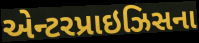
એન્ટરપ્રાઇઝિસના